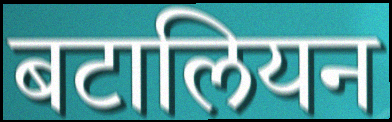
बटालियन